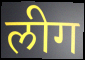
लीग